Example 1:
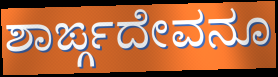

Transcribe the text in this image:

ಶಾರ್ಙ್ಗದೇವನೂ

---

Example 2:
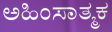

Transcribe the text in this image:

ಅಹಿಂಸಾತ್ಮಕ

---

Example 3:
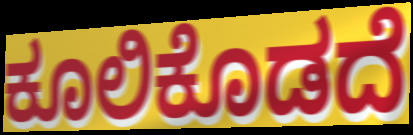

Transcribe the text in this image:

ಕೂಲಿಕೊಡದೆ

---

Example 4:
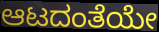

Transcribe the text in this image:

ಆಟದಂತೆಯೇ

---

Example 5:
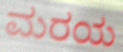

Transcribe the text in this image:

ಮರಯ